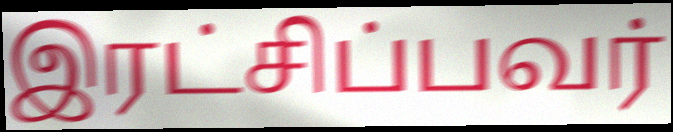
இரட்சிப்பவர்